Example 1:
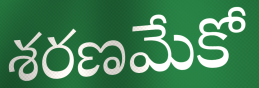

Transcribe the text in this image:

శరణమేకో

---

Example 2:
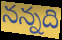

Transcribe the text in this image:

నన్నది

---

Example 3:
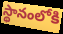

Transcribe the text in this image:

స్థానంలోకి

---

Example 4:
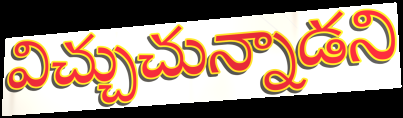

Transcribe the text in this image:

విచ్చుచున్నాడని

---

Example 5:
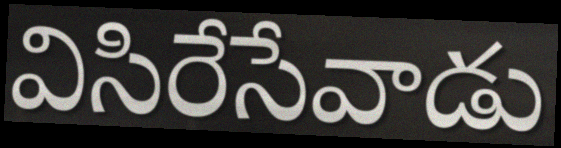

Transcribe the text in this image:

విసిరేసేవాడు